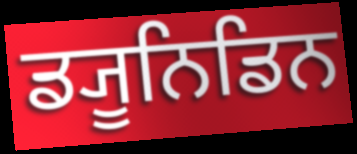
ਡ੍ਯੂਨਿਡਿਨ